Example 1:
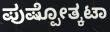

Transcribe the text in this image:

ಪುಷ್ಪೋತ್ಕಟಾ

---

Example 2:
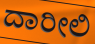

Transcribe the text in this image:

ದಾರೀಲಿ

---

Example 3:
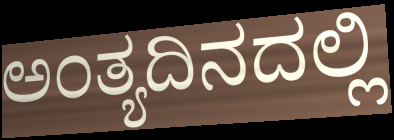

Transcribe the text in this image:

ಅಂತ್ಯದಿನದಲ್ಲಿ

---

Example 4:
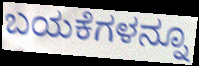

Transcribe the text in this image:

ಬಯಕೆಗಳನ್ನೂ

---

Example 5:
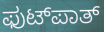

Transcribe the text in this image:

ಫುಟ್‍ಪಾತ್